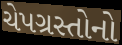
ચેપગ્રસ્તોનો